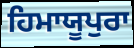
ਹਿਮਾਯੂਪੁਰਾ